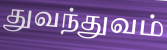
துவந்துவம்